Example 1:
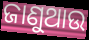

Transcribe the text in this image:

ଜାଣୁଥାଉ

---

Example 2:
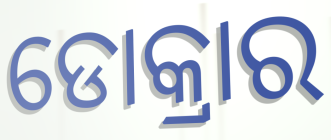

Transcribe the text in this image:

ଡୋକ୍ରାର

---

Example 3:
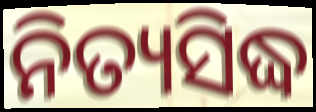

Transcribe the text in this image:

ନିତ୍ୟସିଦ୍ଧ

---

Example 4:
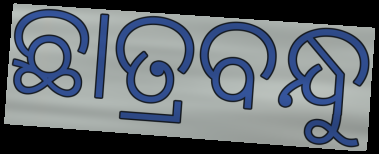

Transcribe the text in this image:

ଛାତ୍ରବନ୍ଧୁ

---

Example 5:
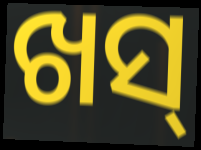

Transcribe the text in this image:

ଖସ୍